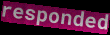
responded